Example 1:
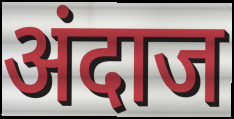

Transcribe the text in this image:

अंदाज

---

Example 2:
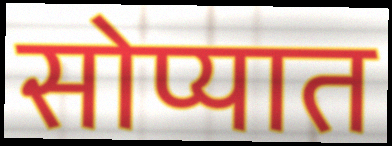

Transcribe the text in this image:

सोप्यात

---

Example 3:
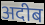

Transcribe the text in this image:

अदीब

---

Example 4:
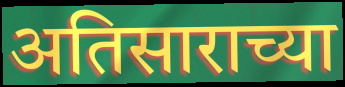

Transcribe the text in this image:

अतिसाराच्या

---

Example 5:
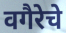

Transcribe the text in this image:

वगैरेचे